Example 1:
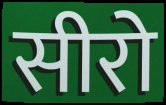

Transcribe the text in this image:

सीरो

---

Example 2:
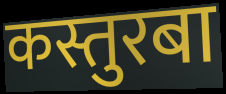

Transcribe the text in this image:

कस्तुरबा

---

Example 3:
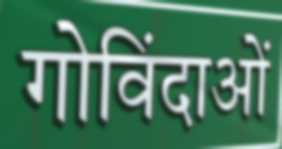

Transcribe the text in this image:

गोविंदाओं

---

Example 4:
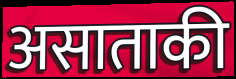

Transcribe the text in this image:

असाताकी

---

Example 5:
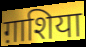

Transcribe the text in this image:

ग़ाशिया